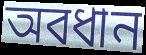
অবধান